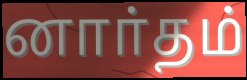
னார்தம்